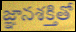
జ్ఞానశక్తితో